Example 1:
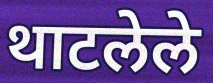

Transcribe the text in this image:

थाटलेले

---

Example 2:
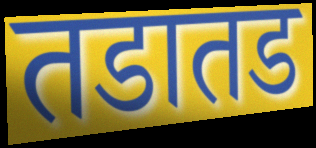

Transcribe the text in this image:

तडातड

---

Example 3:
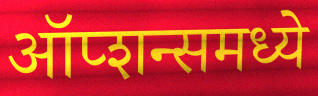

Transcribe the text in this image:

ऑप्शन्समध्ये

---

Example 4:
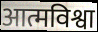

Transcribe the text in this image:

आत्मविश्वा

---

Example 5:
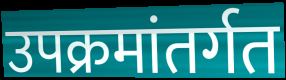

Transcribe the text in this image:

उपक्रमांतर्गत